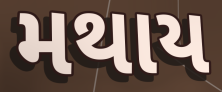
મથાય